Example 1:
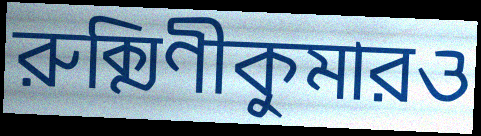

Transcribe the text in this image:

রুক্মিণীকুমারও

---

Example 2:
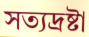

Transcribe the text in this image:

সত্যদ্রষ্টা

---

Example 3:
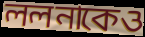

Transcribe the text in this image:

ললনাকেও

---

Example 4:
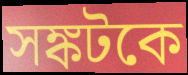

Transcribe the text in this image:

সঙ্কটকে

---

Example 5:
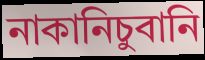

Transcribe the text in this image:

নাকানিচুবানি